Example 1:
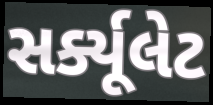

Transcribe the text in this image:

સર્ક્યૂલેટ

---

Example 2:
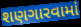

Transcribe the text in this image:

શણગારવામાં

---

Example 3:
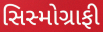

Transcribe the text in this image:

સિસ્મોગ્રાફી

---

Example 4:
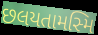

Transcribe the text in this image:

છલયતામસ્મિ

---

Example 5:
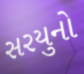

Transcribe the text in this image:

સરયુનો